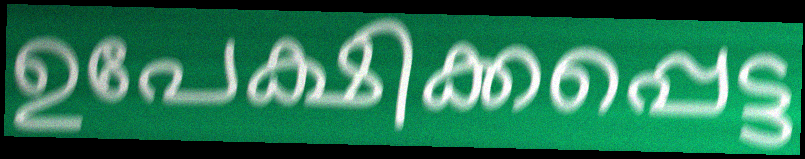
ഉപേക്ഷിക്കപ്പെട്ട